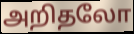
அறிதலோ